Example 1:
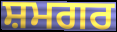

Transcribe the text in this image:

ਸ਼ਮਗਰ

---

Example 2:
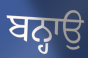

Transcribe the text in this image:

ਬਨ੍ਹਾਉ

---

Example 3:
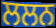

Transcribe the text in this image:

ਲਲਨ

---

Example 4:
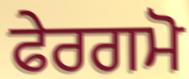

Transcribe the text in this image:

ਫੇਰਗਮੋ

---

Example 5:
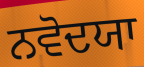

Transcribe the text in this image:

ਨਵੋਦਯਾ